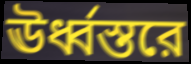
ঊর্ধ্বস্তরে